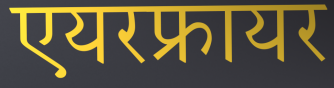
एयरफ्रायर